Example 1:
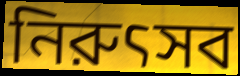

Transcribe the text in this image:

নিরুৎসব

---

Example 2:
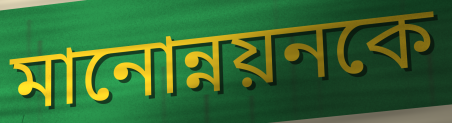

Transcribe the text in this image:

মানোন্নয়নকে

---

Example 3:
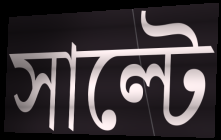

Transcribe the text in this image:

সাল্টে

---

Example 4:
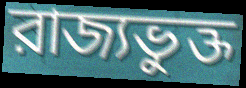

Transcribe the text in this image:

রাজ্যভুক্ত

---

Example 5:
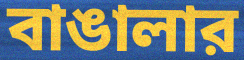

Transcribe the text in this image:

বাঙালার